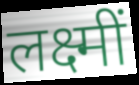
लक्ष्मीं